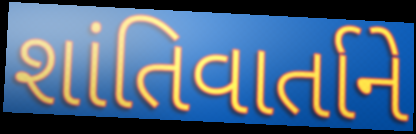
શાંતિવાર્તાને